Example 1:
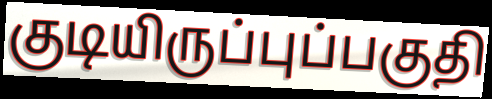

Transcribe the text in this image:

குடியிருப்புப்பகுதி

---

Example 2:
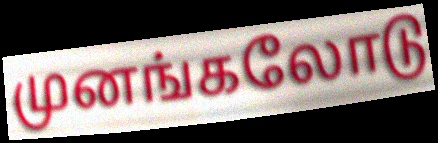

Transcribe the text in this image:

முனங்கலோடு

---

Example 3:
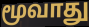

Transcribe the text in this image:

மூவாது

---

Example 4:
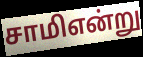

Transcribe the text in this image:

சாமிஎன்று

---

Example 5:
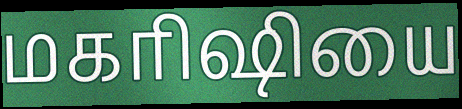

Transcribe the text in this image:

மகரிஷியை